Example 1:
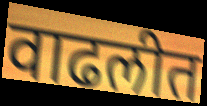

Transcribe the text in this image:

वाढलीत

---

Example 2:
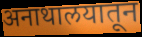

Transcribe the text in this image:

अनाथालयातून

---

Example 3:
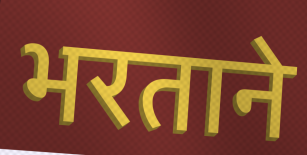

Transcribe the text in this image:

भरताने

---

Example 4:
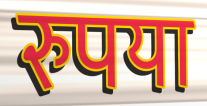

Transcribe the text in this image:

रुपया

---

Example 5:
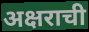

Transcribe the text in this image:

अक्षराची